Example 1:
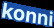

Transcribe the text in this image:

konni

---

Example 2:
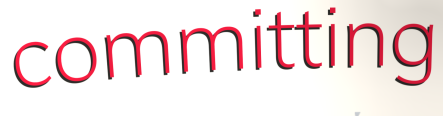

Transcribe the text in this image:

committing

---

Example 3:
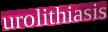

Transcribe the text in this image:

urolithiasis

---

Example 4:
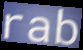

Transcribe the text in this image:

rab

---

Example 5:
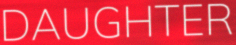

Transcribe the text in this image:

DAUGHTER